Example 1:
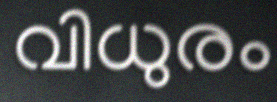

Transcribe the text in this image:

വിധുരം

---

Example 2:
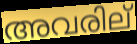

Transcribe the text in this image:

അവരില്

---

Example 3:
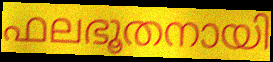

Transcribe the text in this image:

ഫലഭൂതനായി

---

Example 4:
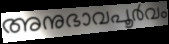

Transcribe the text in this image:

അനുഭാവപൂർവം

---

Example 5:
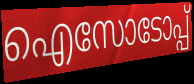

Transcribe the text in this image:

ഐസോടോപ്പ്